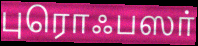
புரொஃபஸர்